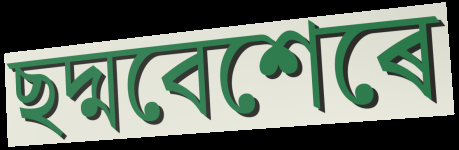
ছদ্মবেশেৰে